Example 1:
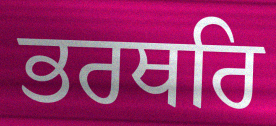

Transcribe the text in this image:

ਭਰਥਰਿ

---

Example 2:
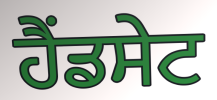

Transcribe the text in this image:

ਹੈਂਡਸੇਟ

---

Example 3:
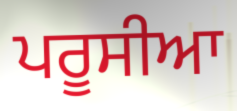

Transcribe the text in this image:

ਪਰੂਸੀਆ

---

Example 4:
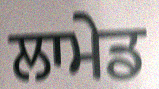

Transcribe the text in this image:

ਲਾਮੇਡ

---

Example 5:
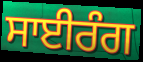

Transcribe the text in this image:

ਸਾਈਰੰਗ